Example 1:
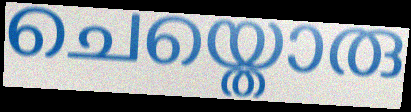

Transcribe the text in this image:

ചെയ്തൊരു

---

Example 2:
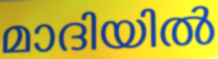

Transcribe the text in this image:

മാദിയിൽ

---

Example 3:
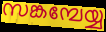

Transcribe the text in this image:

സങ്കമ്പേയ്യ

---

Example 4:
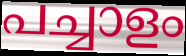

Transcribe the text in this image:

പച്ചാളം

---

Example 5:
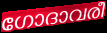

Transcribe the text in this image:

ഗോദാവരീ